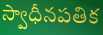
స్వాధీనపతిక